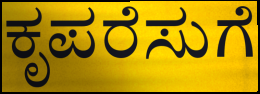
ಕೃಪರೆಸುಗೆ